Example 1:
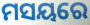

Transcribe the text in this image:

ମସୟରେ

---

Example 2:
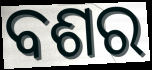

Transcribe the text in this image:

ବଶର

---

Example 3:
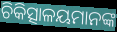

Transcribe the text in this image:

ଚିକିତ୍ସାଳୟମାନଙ୍କ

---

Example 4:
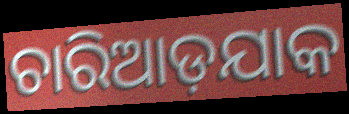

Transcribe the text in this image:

ଚାରିଆଡ଼ଯାକ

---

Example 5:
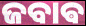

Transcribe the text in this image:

ଜବାଵ